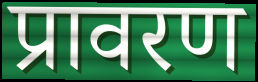
प्रावरण